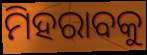
ମିହରାବକୁ